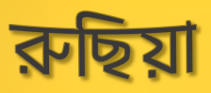
ৰুছিয়া